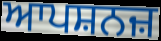
ਆਪਸ਼ਨਜ਼